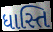
ધાસ્તિ